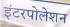
इंटरपोलेशन